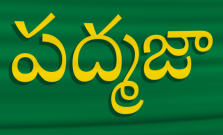
పద్మజా